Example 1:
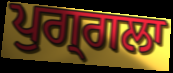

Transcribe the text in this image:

ਪੁਗ੍ਗਲਾ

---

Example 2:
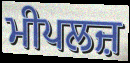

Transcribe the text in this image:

ਮੀਪਲਜ਼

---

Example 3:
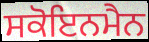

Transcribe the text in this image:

ਸਕੋਇਨਮੈਨ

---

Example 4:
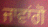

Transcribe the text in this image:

ਜਾਵਾਂਗੋ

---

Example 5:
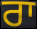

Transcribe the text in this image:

ਰਾ